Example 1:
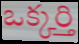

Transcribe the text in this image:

ఒక్కర్తి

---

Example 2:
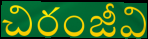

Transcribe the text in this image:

చిరంజీవి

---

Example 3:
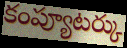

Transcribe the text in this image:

కంప్యూటర్కు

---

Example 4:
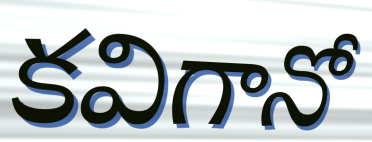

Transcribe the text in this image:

కవిగానో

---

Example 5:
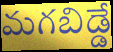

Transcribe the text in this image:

మగబిడ్డే